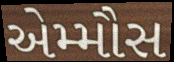
એમ્મૌસ